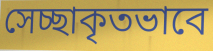
সেচ্ছাকৃতভাবে